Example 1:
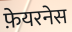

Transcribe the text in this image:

फ़ेयरनेस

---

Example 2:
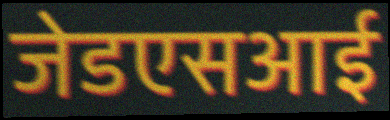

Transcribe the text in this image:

जेडएसआई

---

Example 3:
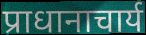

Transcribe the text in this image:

प्राधानाचार्य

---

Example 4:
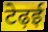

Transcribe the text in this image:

टेढ़ई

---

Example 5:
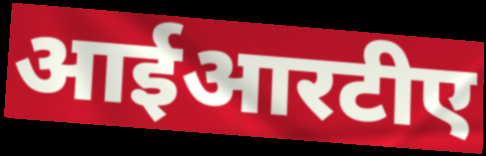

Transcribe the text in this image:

आईआरटीए